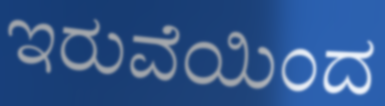
ಇರುವೆಯಿಂದ